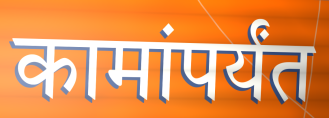
कामांपर्यंत